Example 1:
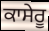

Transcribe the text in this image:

ਕਾਸੇਰੂ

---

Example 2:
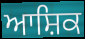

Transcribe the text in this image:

ਆਸ਼ਿਕ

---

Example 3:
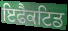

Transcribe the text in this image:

ਇਫੈਕਟਿਡ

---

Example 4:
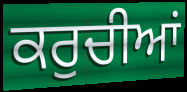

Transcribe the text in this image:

ਕਰੁਚੀਆਂ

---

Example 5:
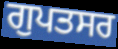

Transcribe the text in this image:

ਗੁਪਤਸਰ